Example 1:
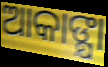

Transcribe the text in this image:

ଆକାଙ୍କ୍ଷା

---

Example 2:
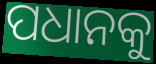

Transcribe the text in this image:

ପଧାନକୁ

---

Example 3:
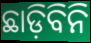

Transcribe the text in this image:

ଛାଡ଼ିବିନି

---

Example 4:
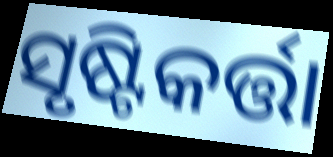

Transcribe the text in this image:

ସୃଷ୍ଟିକର୍ତ୍ତା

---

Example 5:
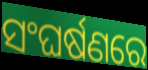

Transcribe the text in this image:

ସଂଘର୍ଷଣରେ